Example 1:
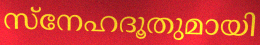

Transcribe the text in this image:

സ്നേഹദൂതുമായി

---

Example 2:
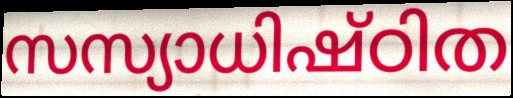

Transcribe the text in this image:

സസ്യാധിഷ്ഠിത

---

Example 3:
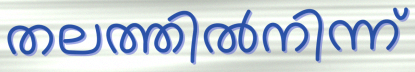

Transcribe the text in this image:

തലത്തിൽനിന്ന്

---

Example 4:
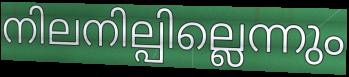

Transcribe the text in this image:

നിലനില്പില്ലെന്നും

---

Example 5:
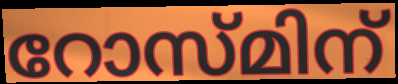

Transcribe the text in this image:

റോസ്മിന്